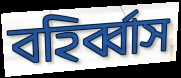
বহির্ব্বাস